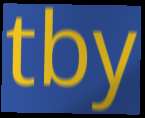
tby